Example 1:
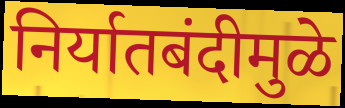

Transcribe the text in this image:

निर्यातबंदीमुळे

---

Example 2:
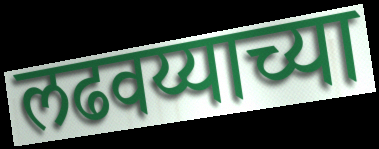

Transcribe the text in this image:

लढवय्याच्या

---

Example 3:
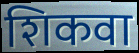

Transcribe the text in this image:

शिकवा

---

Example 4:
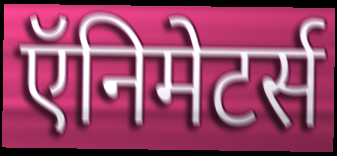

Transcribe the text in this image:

ऍनिमेटर्स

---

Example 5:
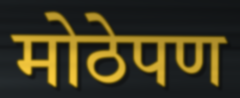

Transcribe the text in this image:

मोठेपण